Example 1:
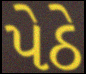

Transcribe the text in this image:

પેઠે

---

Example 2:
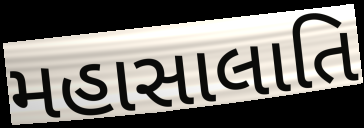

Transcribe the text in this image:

મહાસાલાતિ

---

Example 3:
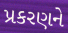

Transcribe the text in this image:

પ્રકરણને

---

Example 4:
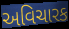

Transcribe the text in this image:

અવિચારક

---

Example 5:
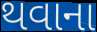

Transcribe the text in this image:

થવાના